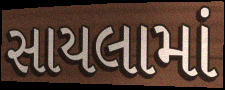
સાયલામાં